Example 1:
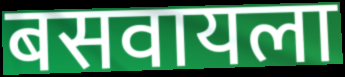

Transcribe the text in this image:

बसवायला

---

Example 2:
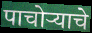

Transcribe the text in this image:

पाचोऱ्याचे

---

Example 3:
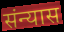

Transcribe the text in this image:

संन्यास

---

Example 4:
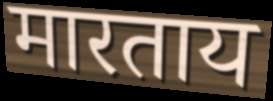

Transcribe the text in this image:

मारताय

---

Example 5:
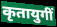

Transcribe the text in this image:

कृतायुगीं